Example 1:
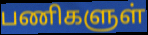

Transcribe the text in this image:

பணிகளுள்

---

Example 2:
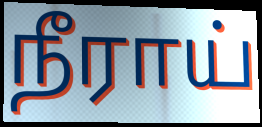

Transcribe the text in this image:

நீராய்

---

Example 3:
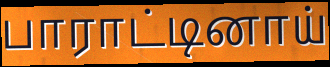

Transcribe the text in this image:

பாராட்டினாய்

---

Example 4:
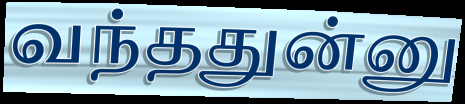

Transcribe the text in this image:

வந்ததுன்னு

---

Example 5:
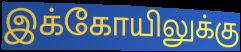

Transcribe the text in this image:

இக்கோயிலுக்கு